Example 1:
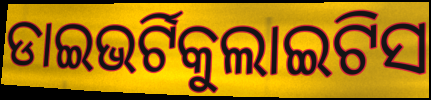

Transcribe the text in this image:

ଡାଇଭର୍ଟିକୁଲାଇଟିସ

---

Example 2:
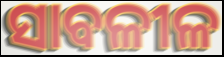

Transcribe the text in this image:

ସାବଳୀଳ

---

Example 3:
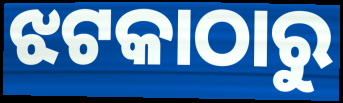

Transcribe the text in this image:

ଝଟକାଠାରୁ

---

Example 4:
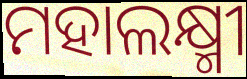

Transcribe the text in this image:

ମହାଲକ୍ଷ୍ମୀ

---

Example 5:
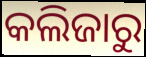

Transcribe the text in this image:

କଲିଜାରୁ